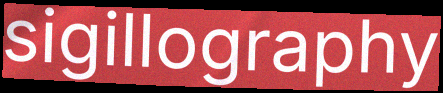
sigillography